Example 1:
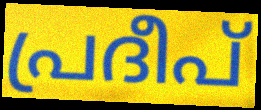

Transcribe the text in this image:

പ്രദീപ്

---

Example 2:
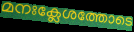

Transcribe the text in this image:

മനഃക്ലേശത്തോടെ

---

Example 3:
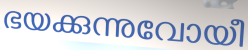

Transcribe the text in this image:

ഭയക്കുന്നുവോയീ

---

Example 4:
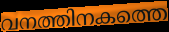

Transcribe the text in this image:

വനത്തിനകത്തെ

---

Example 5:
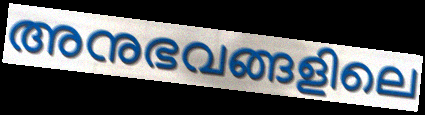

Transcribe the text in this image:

അനുഭവങ്ങളിലെ